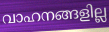
വാഹനങ്ങളില്ല